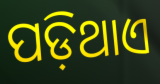
ପଡ଼ିଥାଏ